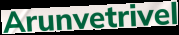
Arunvetrivel